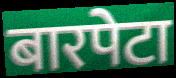
बारपेटा